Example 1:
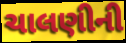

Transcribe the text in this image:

ચાલણીની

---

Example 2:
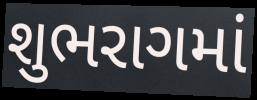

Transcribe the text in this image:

શુભરાગમાં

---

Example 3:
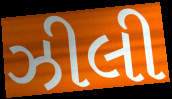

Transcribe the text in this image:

ઝીલી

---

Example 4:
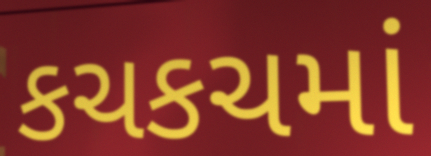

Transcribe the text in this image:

કચકચમાં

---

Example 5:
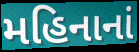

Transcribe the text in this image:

મહિનાનાં